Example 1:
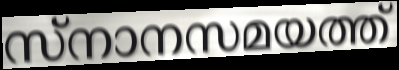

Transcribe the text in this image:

സ്നാനസമയത്ത്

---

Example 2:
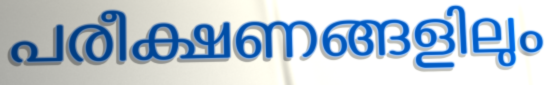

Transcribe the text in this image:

പരീക്ഷണങ്ങളിലും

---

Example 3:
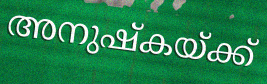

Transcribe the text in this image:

അനുഷ്കയ്ക്ക്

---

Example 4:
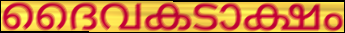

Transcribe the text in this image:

ദൈവകടാക്ഷം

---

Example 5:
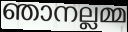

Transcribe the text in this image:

ഞാനല്ലമ്മ